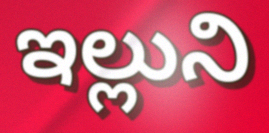
ఇల్లుని